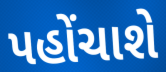
પહોંચાશે